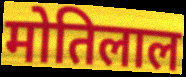
मोतिलाल